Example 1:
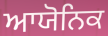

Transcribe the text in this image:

ਆਯੋਨਿਕ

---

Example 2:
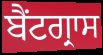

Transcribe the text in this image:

ਬੈਂਟਗ੍ਰਾਸ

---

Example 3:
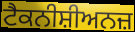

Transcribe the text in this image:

ਟੈਕਨੀਸ਼ੀਅਨਜ਼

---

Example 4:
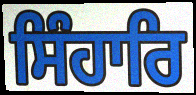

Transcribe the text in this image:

ਸਿੰਹਾਰਿ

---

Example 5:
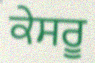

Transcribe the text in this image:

ਕੇਸਰੂ